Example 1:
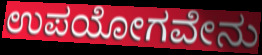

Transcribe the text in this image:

ಉಪಯೋಗವೇನು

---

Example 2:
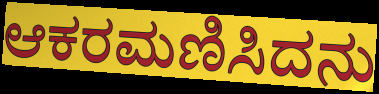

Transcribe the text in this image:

ಆಕರಮಣಿಸಿದನು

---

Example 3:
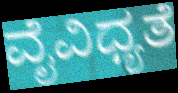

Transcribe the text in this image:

ವೈವಿಧ್ಯತೆ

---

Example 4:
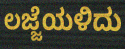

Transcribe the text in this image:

ಲಜ್ಜೆಯಳಿದು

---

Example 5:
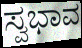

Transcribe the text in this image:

ಸ್ವಭಾವ